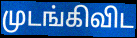
முடங்கிவிட